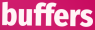
buffers